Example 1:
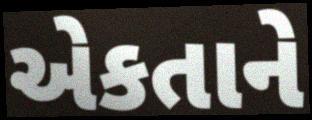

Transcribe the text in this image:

એકતાને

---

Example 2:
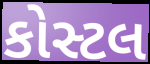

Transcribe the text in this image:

કોસ્ટલ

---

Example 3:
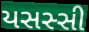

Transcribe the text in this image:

યસસ્સી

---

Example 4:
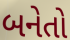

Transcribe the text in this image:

બનેતો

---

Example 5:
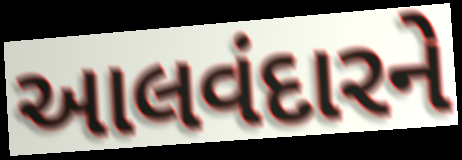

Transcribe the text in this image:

આલવંદારને